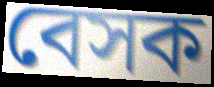
বেসক